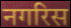
नगरिस